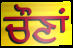
ਚੌਣਾਂ